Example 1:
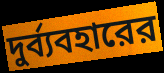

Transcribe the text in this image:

দুর্ব্যবহারের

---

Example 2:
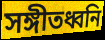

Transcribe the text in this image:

সঙ্গীতধ্বনি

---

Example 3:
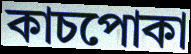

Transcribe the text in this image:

কাচপোকা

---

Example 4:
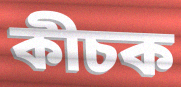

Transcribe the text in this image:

কীচক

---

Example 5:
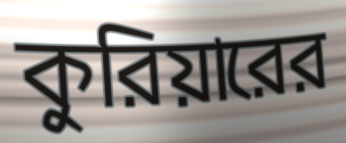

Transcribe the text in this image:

কুরিয়ারের